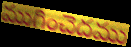
ముగించెదము